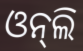
ଓନ୍‍ଲି